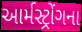
આર્મસ્ટ્રોંગના